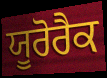
ਯੂਰੋਰੈਕ